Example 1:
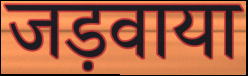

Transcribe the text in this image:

जड़वाया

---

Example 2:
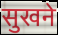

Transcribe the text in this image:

सुखने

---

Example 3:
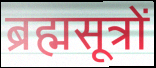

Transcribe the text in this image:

ब्रह्मसूत्रों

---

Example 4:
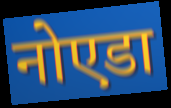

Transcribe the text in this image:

नोएडा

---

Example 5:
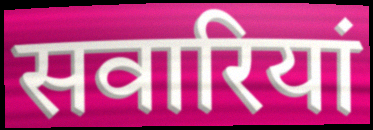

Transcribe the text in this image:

सवारियां